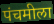
पंचमीला